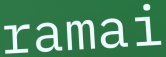
ramai